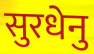
सुरधेनु